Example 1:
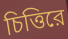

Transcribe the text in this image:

চিত্তিরে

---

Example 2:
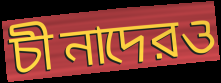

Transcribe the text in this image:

চীনাদেরও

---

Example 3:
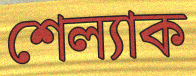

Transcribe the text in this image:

শেল্যাক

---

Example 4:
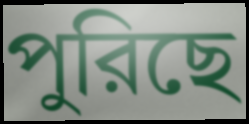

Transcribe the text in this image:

পুরিছে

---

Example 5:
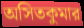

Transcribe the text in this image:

অসিতকুমার